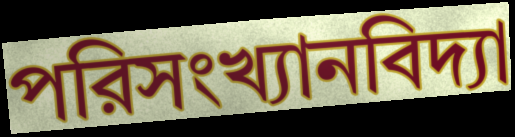
পরিসংখ্যানবিদ্যা